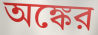
অঙ্কের